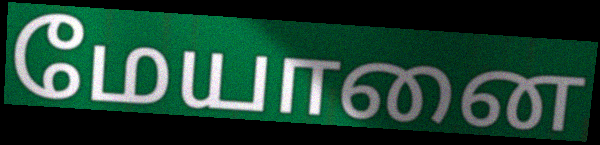
மேயானை